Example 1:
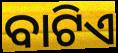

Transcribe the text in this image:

ବାଟିଏ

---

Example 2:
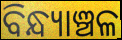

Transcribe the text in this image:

ବିନ୍ଧ୍ୟାଞ୍ଚଳ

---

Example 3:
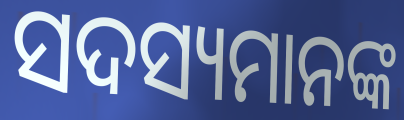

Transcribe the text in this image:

ସଦସ୍ୟମାନଙ୍କ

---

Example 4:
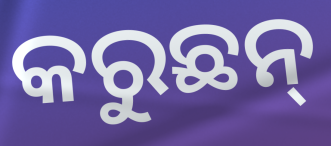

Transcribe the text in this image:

କରୁଛନ୍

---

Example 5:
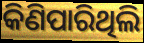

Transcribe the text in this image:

କିଣିପାରିଥିଲି